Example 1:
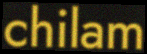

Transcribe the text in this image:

chilam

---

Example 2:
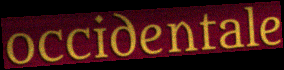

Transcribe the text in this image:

occidentale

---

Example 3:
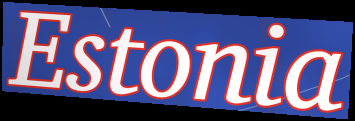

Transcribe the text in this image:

Estonia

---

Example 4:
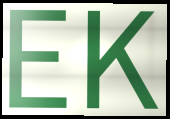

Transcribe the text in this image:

EK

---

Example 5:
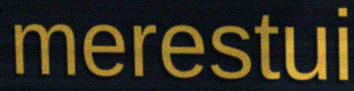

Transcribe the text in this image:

merestui